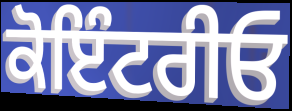
ਕੋਇੰਟਰੀਓ